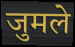
जुमले